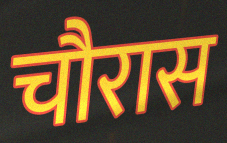
चौरास